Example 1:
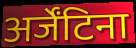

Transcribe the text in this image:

अर्जेंटिना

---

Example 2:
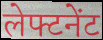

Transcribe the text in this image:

लेफ्टनेंट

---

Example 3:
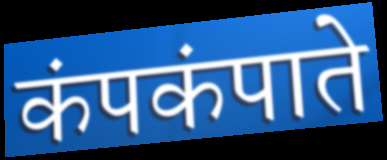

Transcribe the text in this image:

कंपकंपाते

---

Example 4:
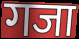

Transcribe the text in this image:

गजा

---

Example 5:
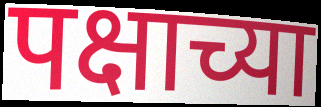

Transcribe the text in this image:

पक्षाच्या